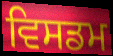
ਵਿਸਡਮ